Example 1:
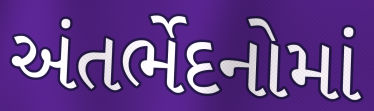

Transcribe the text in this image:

અંતર્ભેદનોમાં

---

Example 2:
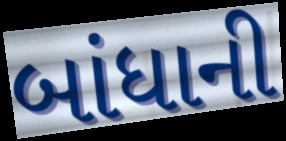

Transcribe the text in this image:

બાંધાની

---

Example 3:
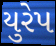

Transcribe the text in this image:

યુરેપ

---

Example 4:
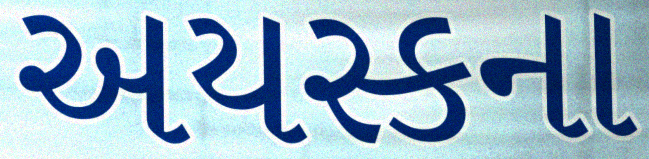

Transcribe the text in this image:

અયસ્કના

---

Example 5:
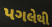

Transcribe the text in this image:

પગલેથી